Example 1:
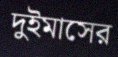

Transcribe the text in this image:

দুইমাসের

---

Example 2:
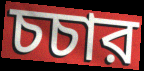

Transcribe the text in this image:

চচার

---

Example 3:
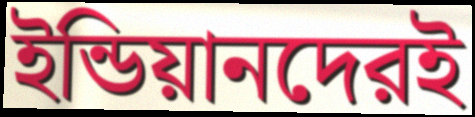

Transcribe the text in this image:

ইন্ডিয়ানদেরই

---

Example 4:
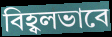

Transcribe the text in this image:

বিহ্বলভাবে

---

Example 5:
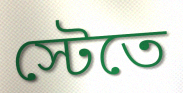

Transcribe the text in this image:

স্টেতে